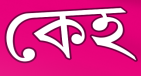
কেহ